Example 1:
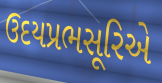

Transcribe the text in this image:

ઉદયપ્રભસૂરિએ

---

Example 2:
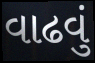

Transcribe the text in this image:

વાઢવું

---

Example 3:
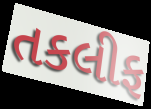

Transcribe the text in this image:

તકલીફ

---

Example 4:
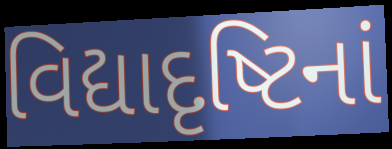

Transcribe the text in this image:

વિદ્યાદૃષ્ટિનાં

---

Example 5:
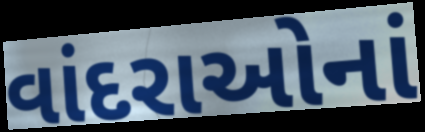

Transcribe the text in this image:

વાંદરાઓનાં